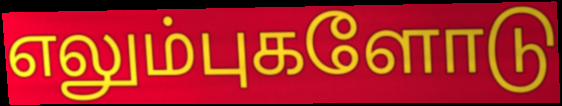
எலும்புகளோடு